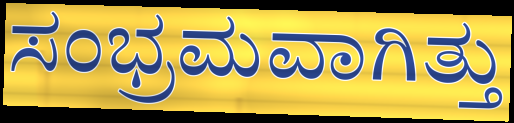
ಸಂಭ್ರಮವಾಗಿತ್ತು